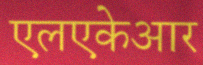
एलएकेआर